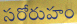
సరోరుహం